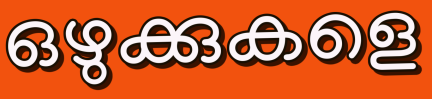
ഒഴുക്കുകളെ